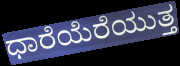
ಧಾರೆಯೆರೆಯುತ್ತ